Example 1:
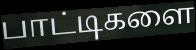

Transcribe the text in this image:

பாட்டிகளை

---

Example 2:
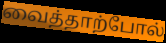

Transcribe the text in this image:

வைத்தாற்போல்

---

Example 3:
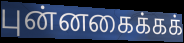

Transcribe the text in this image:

புன்னகைக்கக்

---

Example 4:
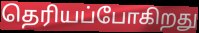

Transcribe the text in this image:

தெரியப்போகிறது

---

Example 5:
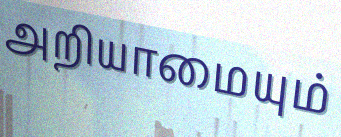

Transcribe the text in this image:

அறியாமையும்